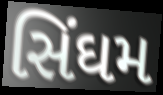
સિંઘમ